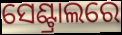
ସେଣ୍ଟ୍ରାଲରେ